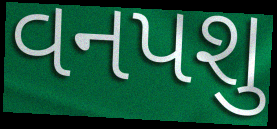
વનપશુ